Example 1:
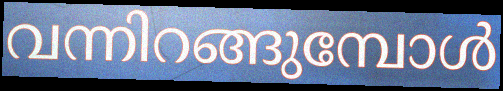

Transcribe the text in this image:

വന്നിറങ്ങുമ്പോൾ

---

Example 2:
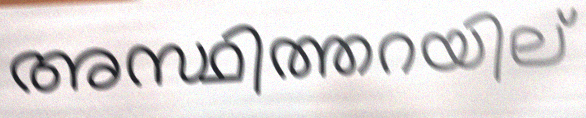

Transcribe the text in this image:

അസ്ഥിത്തറയില്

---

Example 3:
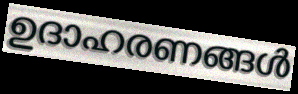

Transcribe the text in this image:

ഉദാഹരണങ്ങൾ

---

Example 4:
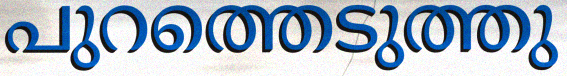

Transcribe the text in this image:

പുറത്തെടുത്തു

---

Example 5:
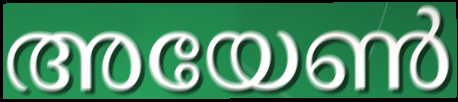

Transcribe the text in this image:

അയേൺ